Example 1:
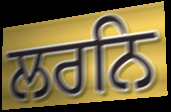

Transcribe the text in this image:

ਲਰਨਿ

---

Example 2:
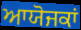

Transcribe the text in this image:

ਆਯੋਜਕਾਂ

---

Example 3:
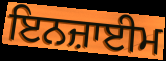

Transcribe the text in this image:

ਇਨਜ਼ਾਈਮ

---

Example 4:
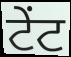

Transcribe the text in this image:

ਟੇਂਟ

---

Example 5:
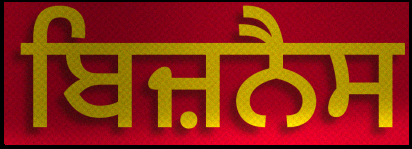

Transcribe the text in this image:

ਬਿਜ਼ਨੈਸ